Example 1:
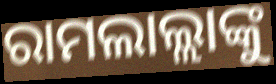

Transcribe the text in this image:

ରାମଲାଲ୍ଲାଙ୍କୁ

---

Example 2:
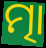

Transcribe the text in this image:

ତ୍ମା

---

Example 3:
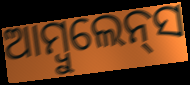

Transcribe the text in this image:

ଆମ୍ବୁଲେନ୍‌ସ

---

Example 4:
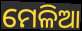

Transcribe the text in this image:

ମେଳିଆ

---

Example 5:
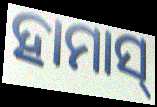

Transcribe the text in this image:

ହାମାସ୍